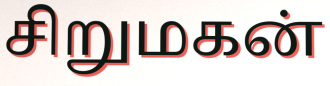
சிறுமகன்